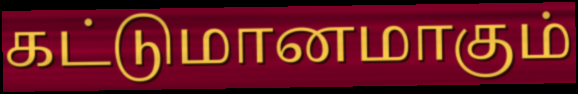
கட்டுமானமாகும்